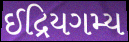
ઈદ્રિયગમ્ય